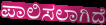
ಪಾಲಿಸಲಾಗಿದೆ